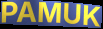
PAMUK